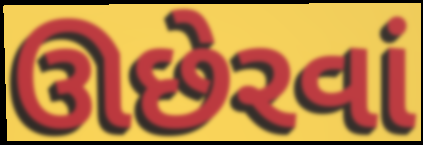
ઊછેરવાં